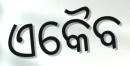
ଏକୈବ